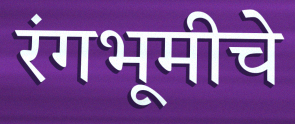
रंगभूमीचे